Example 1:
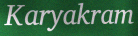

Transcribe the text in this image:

Karyakram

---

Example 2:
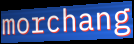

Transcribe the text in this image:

morchang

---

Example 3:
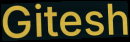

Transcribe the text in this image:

Gitesh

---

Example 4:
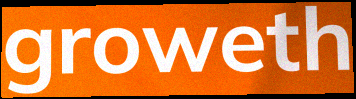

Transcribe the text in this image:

groweth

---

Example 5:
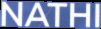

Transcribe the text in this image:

NATHI